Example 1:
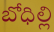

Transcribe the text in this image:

బోధిల్లి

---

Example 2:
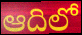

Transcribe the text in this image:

ఆదిలో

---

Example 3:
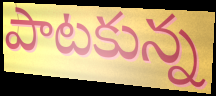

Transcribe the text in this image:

పాటకున్న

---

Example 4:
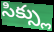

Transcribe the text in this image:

సిక్స్లు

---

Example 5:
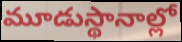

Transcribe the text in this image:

మూడుస్థానాల్లో